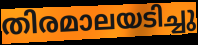
തിരമാലയടിച്ചു